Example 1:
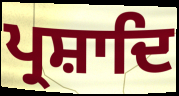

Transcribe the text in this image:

ਪ੍ਰਸ਼ਾਦਿ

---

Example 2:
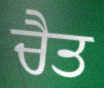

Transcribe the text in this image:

ਚੈਤ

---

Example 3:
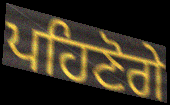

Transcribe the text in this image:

ਪਹਿਣੋਗੇ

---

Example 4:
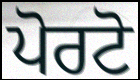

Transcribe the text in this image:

ਪੋਰਟੋ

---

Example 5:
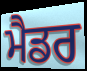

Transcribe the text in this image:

ਮੈਡਰ